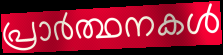
പ്രാർത്ഥനകൾ